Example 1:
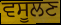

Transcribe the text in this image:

ਵਸੂਲਣ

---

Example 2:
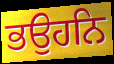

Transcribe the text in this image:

ਭਉਹਨਿ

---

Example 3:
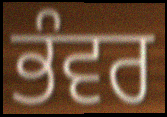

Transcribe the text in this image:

ਭੰਵਰ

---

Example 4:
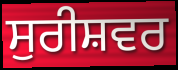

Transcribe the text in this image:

ਸੁਰੀਸ਼ਵਰ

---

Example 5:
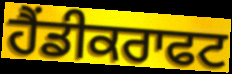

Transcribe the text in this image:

ਹੈਂਡੀਕਰਾਫਟ